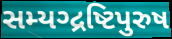
સમ્યગ્દ્રષ્ટિપુરુષ